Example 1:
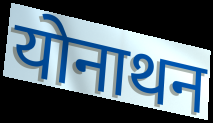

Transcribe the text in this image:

योनाथन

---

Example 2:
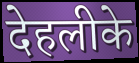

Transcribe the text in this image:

देहलीके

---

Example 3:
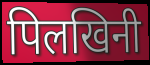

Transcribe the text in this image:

पिलखिनी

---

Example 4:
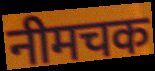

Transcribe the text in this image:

नीमचक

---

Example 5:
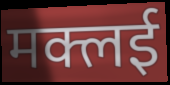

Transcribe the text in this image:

मक्लई